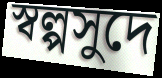
স্বল্পসুদে